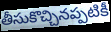
తీసుకొచ్చినప్పటికీ